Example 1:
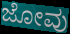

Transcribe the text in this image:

ಜೋವು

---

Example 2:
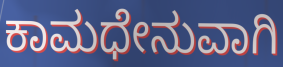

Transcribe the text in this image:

ಕಾಮಧೇನುವಾಗಿ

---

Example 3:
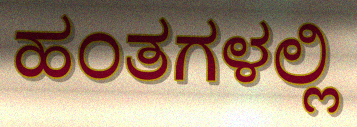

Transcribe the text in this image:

ಹಂತಗಳಲ್ಲಿ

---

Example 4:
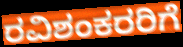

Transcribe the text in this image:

ರವಿಶಂಕರರಿಗೆ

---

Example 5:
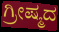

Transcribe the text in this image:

ಗ್ರೀಷ್ಮದ